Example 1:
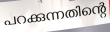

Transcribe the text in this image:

പറക്കുന്നതിന്റെ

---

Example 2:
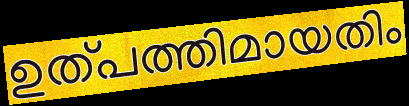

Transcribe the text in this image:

ഉത്പത്തിമായതിം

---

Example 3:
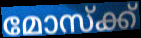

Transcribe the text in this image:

മോസ്ക്ക്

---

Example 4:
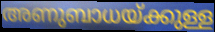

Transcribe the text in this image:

അണുബാധയ്ക്കുള്ള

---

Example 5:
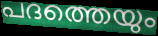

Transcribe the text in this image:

പദത്തെയും